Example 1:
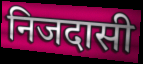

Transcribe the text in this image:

निजदासी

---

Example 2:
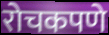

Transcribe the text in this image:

रोचकपणे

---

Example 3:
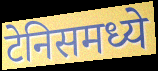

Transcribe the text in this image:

टेनिसमध्ये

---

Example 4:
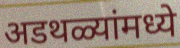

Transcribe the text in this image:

अडथळ्यांमध्ये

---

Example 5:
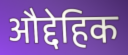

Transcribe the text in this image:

औद्देहिक